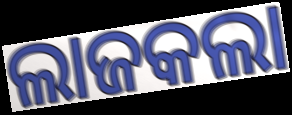
ଲାଜକଲା